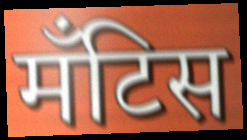
मँटिस